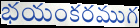
భయంకరముగ